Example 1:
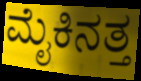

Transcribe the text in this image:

ಮೈಕಿನತ್ತ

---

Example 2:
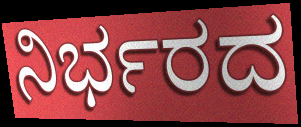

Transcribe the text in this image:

ನಿರ್ಭರದ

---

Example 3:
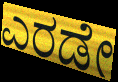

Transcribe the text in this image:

ಎರಡೇ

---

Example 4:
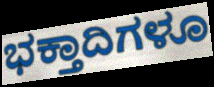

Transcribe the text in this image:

ಭಕ್ತಾದಿಗಳೂ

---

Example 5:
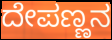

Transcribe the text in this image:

ದೇಪಣ್ಣನ